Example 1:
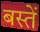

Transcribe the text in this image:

बस्तें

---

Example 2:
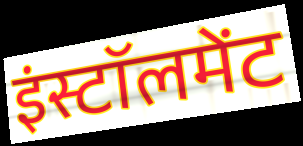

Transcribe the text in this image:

इंस्टॉलमेंट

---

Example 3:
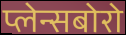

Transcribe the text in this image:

प्लेन्सबोरो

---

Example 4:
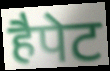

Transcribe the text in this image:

हैपेट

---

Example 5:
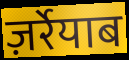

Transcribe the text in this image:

ज़र्रेयाब